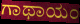
ಗಾಥಾಯಂ